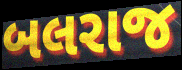
બલરાજ